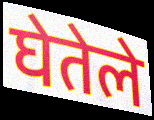
घेतेले